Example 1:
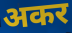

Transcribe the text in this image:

अकर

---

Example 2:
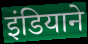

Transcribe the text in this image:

इंडियाने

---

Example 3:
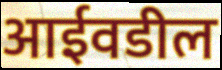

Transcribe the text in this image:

आईवडील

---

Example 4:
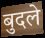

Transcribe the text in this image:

बुदले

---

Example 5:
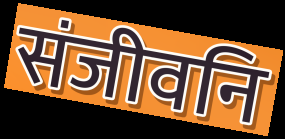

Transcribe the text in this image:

संजीवनि